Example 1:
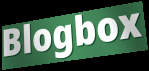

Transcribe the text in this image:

Blogbox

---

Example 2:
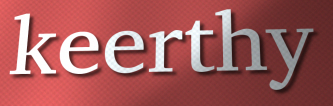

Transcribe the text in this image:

keerthy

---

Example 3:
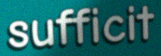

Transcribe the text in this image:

sufficit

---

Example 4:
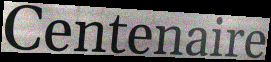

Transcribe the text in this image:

Centenaire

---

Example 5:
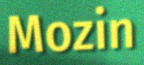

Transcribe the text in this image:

Mozin